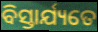
ବିସ୍ତାର୍ଯ୍ୟତେ